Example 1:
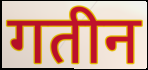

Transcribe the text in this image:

गतीन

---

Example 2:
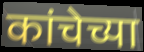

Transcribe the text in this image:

कांचेच्या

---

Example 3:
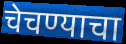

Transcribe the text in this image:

चेचण्याचा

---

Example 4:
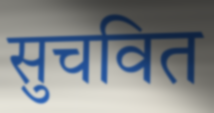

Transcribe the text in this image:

सुचवित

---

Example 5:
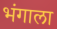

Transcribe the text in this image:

भंगाला